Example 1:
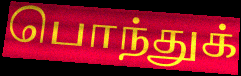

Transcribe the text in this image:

பொந்துக்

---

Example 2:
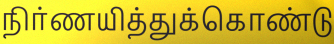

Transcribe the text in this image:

நிர்ணயித்துக்கொண்டு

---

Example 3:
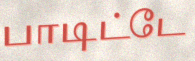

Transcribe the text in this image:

பாடிட்டே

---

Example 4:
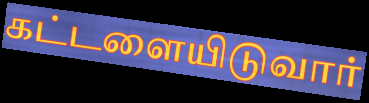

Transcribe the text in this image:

கட்டளையிடுவார்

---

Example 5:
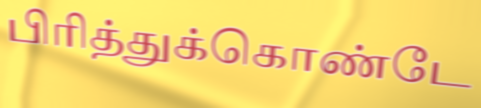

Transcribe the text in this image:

பிரித்துக்கொண்டே